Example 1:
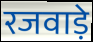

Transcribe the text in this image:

रजवाड़े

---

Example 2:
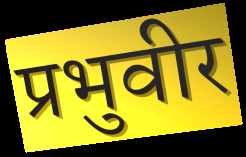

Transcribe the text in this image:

प्रभुवीर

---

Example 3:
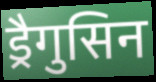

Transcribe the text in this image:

ड्रैगुसिन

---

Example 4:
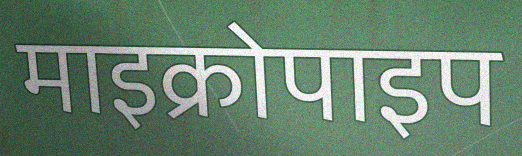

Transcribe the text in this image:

माइक्रोपाइप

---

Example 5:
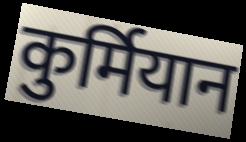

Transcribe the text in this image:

कुर्मियान